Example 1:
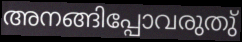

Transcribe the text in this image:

അനങ്ങിപ്പോവരുതു്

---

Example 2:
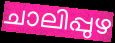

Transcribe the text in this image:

ചാലിപ്പുഴ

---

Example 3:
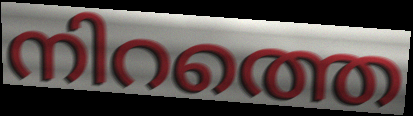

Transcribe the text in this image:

നിറത്തെ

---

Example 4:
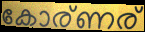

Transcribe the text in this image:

കോര്ണര്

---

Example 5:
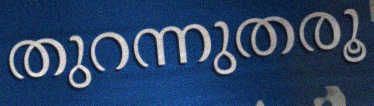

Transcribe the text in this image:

തുറന്നുതരൂ